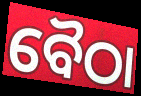
ବୈଠା